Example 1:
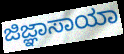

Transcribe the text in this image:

ಜಿಜ್ಞಾಸಾಯಾ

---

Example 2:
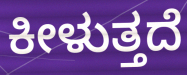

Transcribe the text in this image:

ಕೀಳುತ್ತದೆ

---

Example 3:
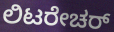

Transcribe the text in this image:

ಲಿಟರೇಚರ್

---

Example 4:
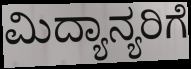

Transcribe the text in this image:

ಮಿದ್ಯಾನ್ಯರಿಗೆ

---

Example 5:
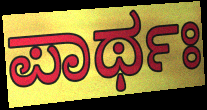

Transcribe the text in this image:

ಪಾರ್ಥಃ